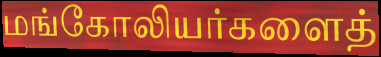
மங்கோலியர்களைத்